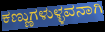
ಕಣ್ಣುಗಳುಳ್ಳವನಾಗಿ